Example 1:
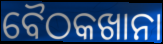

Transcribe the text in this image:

ବୈଠକଖାନା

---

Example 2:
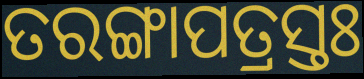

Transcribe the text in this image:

ତରଙ୍ଗାପତ୍ରସ୍ତଃ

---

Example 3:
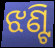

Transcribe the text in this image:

ଝଣ୍ଟି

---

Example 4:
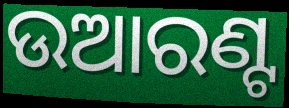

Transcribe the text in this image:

ଉଆରଣ୍ଟ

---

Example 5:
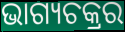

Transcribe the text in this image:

ଭାଗ୍ୟଚକ୍ରର